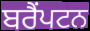
ਬਰੈੰਪਟਨ